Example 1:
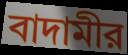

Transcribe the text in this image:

বাদামীর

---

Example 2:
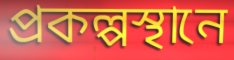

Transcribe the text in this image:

প্রকল্পস্থানে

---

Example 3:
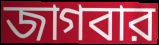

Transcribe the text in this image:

জাগবার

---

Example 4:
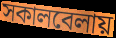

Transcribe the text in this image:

সকালবেলায়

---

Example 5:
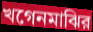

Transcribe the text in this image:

খগেনমাঝির